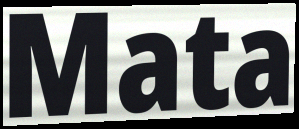
Mata